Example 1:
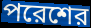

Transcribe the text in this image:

পরেশের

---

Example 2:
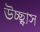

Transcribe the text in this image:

উচ্ছ্বাস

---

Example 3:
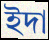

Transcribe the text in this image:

ইদা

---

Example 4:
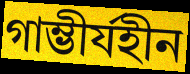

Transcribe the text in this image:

গাম্ভীর্যহীন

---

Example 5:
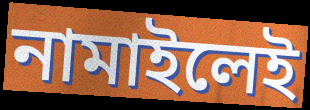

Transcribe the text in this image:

নামাইলেই